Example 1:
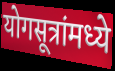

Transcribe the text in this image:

योगसूत्रांमध्ये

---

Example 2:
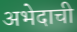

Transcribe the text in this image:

अभेदाची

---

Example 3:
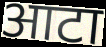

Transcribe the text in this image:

आटा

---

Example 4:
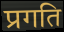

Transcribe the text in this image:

प्रगति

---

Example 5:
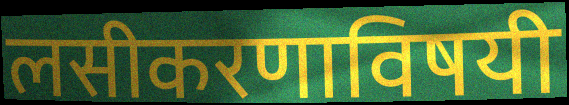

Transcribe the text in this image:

लसीकरणाविषयी